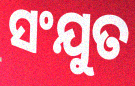
ସଂଯୁତ